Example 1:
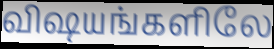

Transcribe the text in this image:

விஷயங்களிலே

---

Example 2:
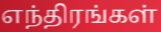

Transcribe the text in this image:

எந்திரங்கள்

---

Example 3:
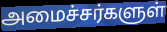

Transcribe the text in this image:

அமைச்சர்களுள்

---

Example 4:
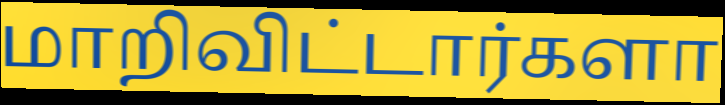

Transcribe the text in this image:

மாறிவிட்டார்களா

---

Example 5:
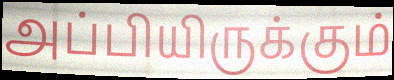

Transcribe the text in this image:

அப்பியிருக்கும்